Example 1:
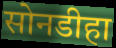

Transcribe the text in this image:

सोनडीहा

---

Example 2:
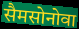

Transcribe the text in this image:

सैमसोनोवा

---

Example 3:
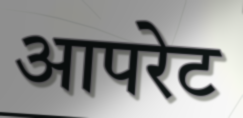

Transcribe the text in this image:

आपरेट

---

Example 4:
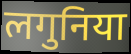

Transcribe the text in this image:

लगुनिया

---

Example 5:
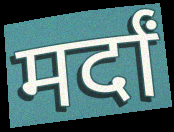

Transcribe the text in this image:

मर्दां